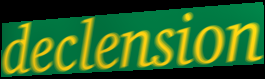
declension